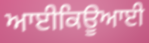
ਆਈਕਿਊਆਈ